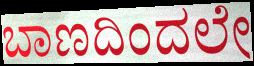
ಬಾಣದಿಂದಲೇ